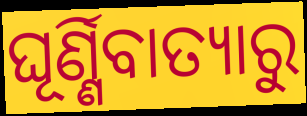
ଘୂର୍ଣ୍ଣିବାତ୍ୟାରୁ